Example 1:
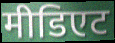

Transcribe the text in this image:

मीडिएट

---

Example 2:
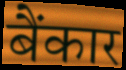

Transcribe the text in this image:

बैंकार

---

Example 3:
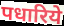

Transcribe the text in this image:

पधारिये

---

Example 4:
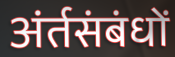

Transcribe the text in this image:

अंर्तसंबंधों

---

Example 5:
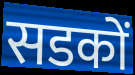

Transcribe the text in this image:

सडकों